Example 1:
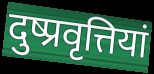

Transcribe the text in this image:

दुष्प्रवृत्तियां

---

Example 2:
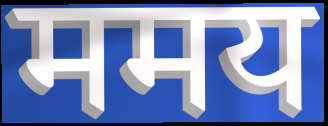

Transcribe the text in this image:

ममय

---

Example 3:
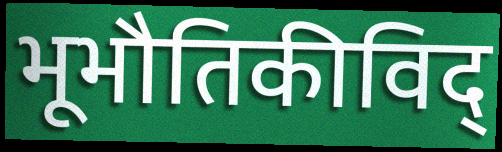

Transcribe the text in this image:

भूभौतिकीविद्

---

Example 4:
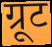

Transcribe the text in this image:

ग्रूट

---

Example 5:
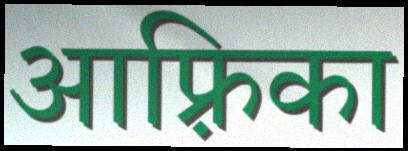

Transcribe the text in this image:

आफ़्रिका